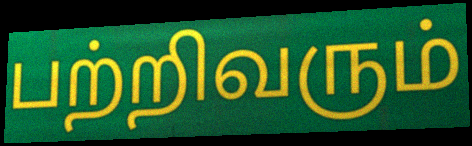
பற்றிவரும்